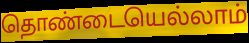
தொண்டையெல்லாம்